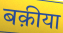
बक़ीया